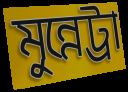
মুন্নেট্ৰা